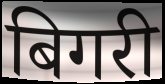
बिगरी